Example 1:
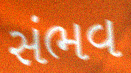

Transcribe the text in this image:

સંભવ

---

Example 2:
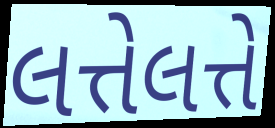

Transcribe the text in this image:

લત્તેલત્તે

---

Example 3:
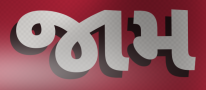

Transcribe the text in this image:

જામ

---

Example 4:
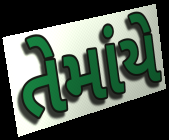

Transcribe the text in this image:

તેમાંયે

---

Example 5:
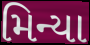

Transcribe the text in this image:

મિન્યા